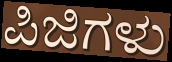
ಪಿಜಿಗಳು